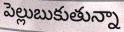
పెల్లుబుకుతున్నా